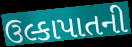
ઉલ્કાપાતની